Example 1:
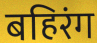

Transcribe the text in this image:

बहिरंग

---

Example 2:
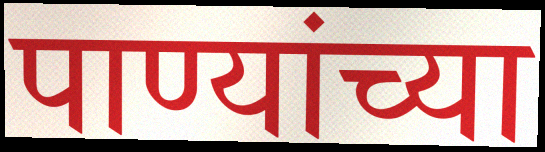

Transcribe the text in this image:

पाण्यांच्या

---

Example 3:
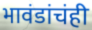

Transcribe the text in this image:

भावंडांचंही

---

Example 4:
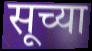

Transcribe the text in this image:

सूच्या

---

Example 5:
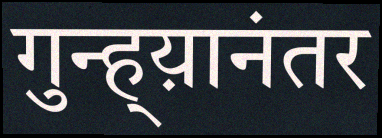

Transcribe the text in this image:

गुन्ह्य़ानंतर